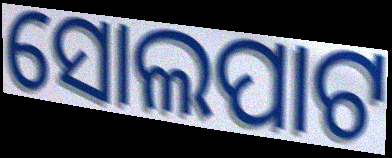
ସୋଲପାଟ